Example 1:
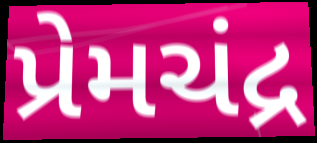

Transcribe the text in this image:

પ્રેમચંદ્ર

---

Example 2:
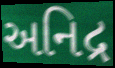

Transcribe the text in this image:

અનિદ્ર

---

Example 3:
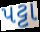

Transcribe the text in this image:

પટ્ટા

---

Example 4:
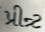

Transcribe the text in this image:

પ્રીન્ર્ટ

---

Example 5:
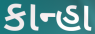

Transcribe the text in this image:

કાન્હા